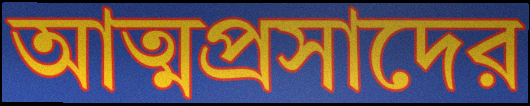
আত্মপ্রসাদের